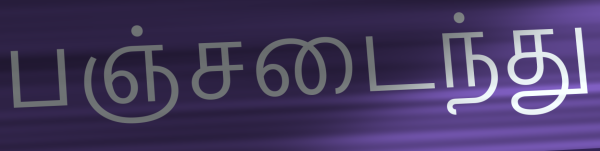
பஞ்சடைந்து